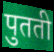
पुतती